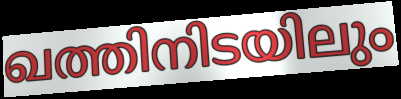
ഖത്തിനിടയിലും